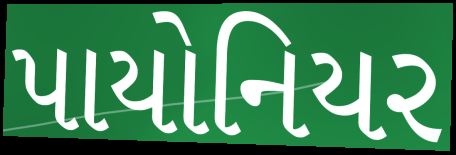
પાયોનિયર